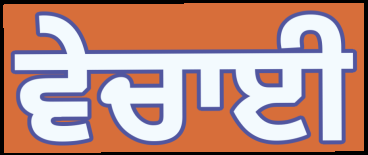
ਵੇਚਾਈ